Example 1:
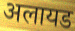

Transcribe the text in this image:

अलायड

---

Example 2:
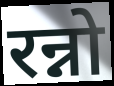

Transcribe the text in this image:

रन्नो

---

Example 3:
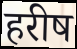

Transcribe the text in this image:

हरीष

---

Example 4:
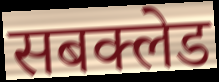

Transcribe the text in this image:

सबक्लेड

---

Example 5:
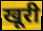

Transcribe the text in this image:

खूरी